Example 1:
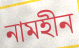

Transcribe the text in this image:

নামহীন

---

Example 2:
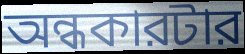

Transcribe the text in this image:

অন্ধকারটার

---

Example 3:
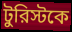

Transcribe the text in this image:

টুরিস্টকে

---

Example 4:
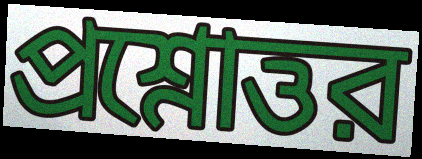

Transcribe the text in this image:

প্রশ্নোত্তর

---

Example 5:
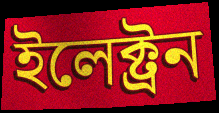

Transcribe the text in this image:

ইলেক্ট্রন